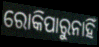
ରୋକିପାରୁନାହିଁ